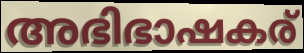
അഭിഭാഷകര്